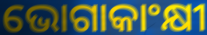
ଭୋଗାକାଂକ୍ଷୀ